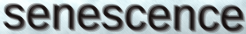
senescence